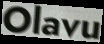
Olavu